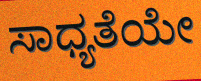
ಸಾಧ್ಯತೆಯೇ